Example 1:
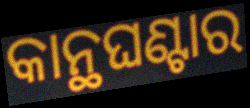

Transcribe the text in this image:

କାନ୍ଥଘଣ୍ଟାର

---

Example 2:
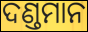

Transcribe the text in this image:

ଦଣ୍ଡମାନ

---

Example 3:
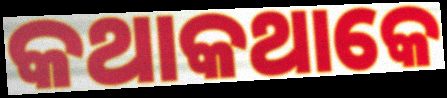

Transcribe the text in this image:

କଥାକଥାକେ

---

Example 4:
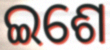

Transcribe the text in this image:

ଇଶେ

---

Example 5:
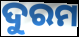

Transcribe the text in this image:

ଦୁରମ